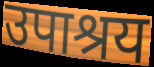
उपाश्रय